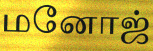
மனோஜ்